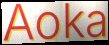
Aoka